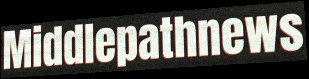
Middlepathnews